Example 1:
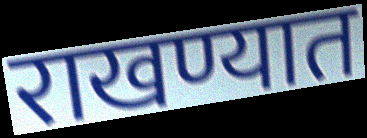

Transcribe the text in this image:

राखण्यात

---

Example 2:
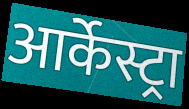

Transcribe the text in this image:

आर्केस्ट्रा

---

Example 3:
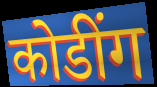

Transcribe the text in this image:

कोडींग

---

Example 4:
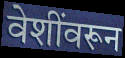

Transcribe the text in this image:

वेशींवरून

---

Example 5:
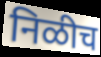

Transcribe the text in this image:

निळीच